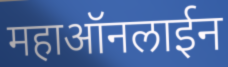
महाऑनलाईन